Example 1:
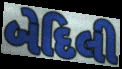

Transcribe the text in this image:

બેદિલી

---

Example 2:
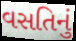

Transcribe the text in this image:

વસતિનું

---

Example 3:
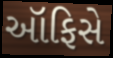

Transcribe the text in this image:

ઑફિસે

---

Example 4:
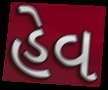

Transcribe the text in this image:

હેવ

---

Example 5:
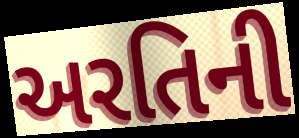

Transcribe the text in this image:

અરતિની